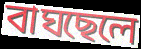
বাঘছেলে